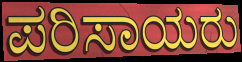
ಪರಿಸಾಯರು